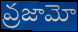
వ్రజామో